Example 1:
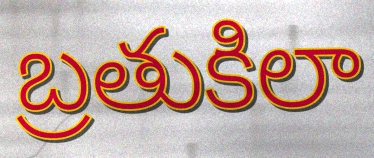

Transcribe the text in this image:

బ్రతుకిలా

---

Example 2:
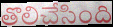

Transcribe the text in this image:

తొలిచేసింది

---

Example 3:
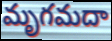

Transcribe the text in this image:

మృగమదా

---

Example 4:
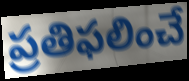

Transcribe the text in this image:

ప్రతిఫలించే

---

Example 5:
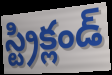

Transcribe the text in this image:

స్ట్రిక్లండ్